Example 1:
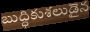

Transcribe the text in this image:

బుద్ధికుశలుడైన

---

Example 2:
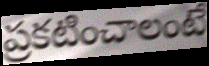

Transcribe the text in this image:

ప్రకటించాలంటే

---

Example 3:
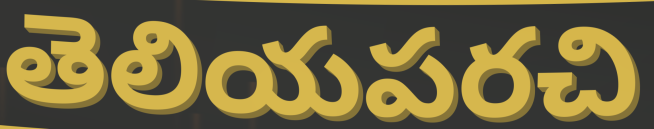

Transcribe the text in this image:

తెలియపరచి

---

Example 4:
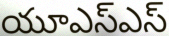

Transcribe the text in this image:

యూఎస్ఎస్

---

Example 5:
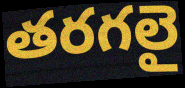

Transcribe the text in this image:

తరగలై